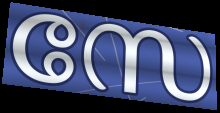
സേ